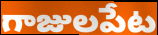
గాజులపేట